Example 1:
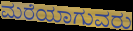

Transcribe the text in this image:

ಮರೆಯಾಗುವರು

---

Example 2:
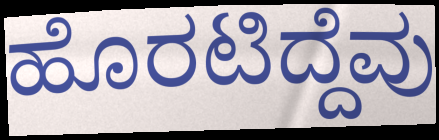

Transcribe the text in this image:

ಹೊರಟಿದ್ದೆವು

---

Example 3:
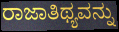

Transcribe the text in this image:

ರಾಜಾತಿಥ್ಯವನ್ನು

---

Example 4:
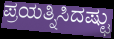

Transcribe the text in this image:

ಪ್ರಯತ್ನಿಸಿದಷ್ಟು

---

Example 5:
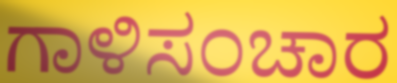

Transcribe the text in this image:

ಗಾಳಿಸಂಚಾರ